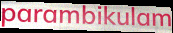
parambikulam